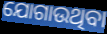
ଯୋଗାଉଥିବା